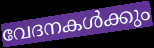
വേദനകൾക്കും